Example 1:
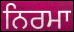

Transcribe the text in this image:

ਨਿਰਮਾ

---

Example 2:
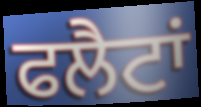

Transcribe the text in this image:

ਫਲੈਟਾਂ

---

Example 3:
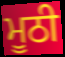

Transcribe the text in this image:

ਮੂਠੀ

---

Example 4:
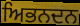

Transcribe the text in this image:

ਅਿਭਨਦਨ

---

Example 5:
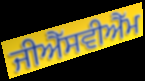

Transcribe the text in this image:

ਜੀਐੱਸਵੀਐੱਮ